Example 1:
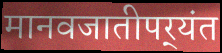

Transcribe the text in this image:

मानवजातीपर्यंत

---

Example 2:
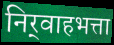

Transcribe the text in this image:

निर्वाहभत्ता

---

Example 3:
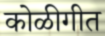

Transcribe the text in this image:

कोळीगीत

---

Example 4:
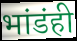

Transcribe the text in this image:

भांडंही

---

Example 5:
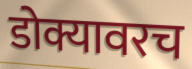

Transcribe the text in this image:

डोक्यावरच